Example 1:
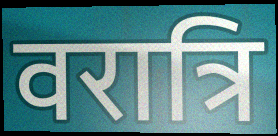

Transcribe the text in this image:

वरात्रि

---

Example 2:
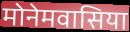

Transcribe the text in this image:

मोनेमवासिया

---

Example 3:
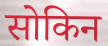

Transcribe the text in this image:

सोकिन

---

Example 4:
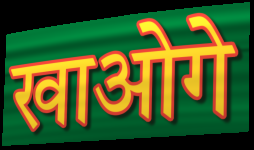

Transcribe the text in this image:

खाओगे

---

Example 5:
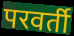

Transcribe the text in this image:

परवर्ती